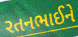
રતનભાઈને